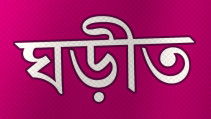
ঘড়ীত